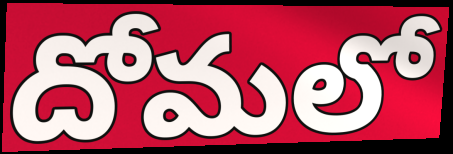
దోమలో